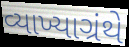
વ્યાખ્યાગ્રંથે